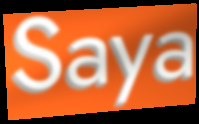
Saya